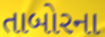
તાબોરના